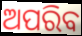
ଅପରିବ